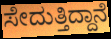
ಸೇದುತ್ತಿದ್ದಾನೆ